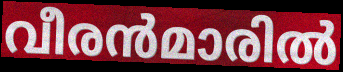
വീരൻമാരിൽ